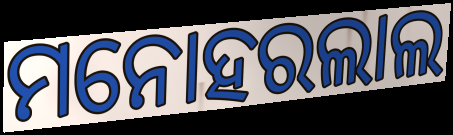
ମନୋହରଲାଲ